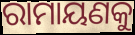
ରାମାୟଣକୁ